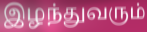
இழந்துவரும்